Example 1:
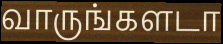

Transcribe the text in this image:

வாருங்களடா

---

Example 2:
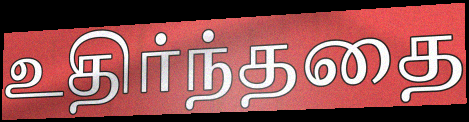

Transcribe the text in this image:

உதிர்ந்ததை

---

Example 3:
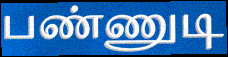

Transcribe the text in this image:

பண்ணுடி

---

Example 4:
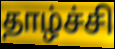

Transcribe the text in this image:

தாழ்ச்சி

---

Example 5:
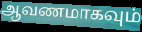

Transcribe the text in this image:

ஆவணமாகவும்